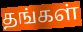
தங்கள்